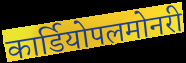
कार्डियोपलमोनरी